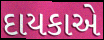
દાયકાએ